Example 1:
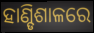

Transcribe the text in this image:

ହାଣ୍ଡିଶାଳରେ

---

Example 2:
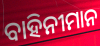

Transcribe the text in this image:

ବାହିନୀମାନ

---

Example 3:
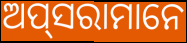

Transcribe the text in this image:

ଅପ୍‌ସରାମାନେ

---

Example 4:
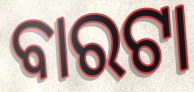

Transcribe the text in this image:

ବାରଟା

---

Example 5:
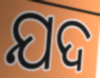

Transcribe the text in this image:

ଯଦ